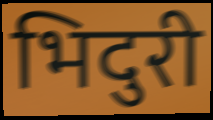
भिदुरी